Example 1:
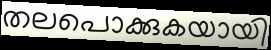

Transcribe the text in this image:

തലപൊക്കുകയായി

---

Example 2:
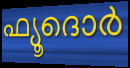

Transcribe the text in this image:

ഫ്യൂദൊർ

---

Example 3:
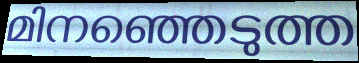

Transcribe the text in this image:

മിനഞ്ഞെടുത്ത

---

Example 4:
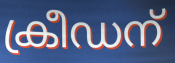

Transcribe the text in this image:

ക്രീഡന്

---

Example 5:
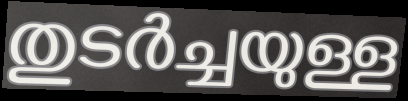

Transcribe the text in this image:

തുടർച്ചയുള്ള